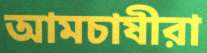
আমচাষীরা